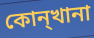
কোন্খানা